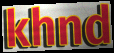
khnd